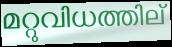
മറ്റുവിധത്തില്